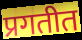
प्रगतीत